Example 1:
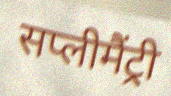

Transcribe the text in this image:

सप्लीमैंट्री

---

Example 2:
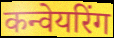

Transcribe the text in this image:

कन्वेयरिंग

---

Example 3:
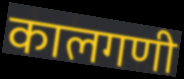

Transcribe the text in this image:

कालगणी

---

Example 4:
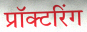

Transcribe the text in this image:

प्रॉक्टरिंग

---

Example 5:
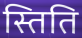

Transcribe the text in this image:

स्तिति